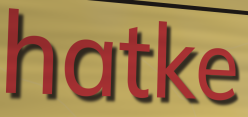
hatke